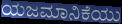
ಯಜಮಾನಿಕೆಯು